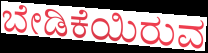
ಬೇಡಿಕೆಯಿರುವ